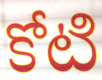
కోటి